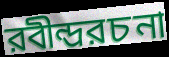
রবীন্দ্ররচনা